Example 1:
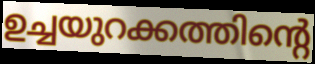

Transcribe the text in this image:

ഉച്ചയുറക്കത്തിന്റെ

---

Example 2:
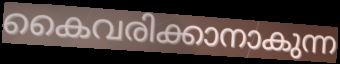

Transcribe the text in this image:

കൈവരിക്കാനാകുന്ന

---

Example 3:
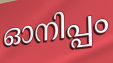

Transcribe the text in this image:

ഓനിപ്പം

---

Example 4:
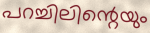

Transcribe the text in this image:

പറച്ചിലിന്റെയും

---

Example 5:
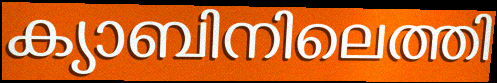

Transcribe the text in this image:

ക്യാബിനിലെത്തി